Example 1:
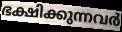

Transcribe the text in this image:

ഭക്ഷിക്കുന്നവർ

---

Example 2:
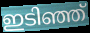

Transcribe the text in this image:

ഇടിഞ്ഞ്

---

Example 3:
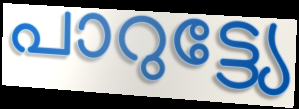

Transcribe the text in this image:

പാറുട്ട്യേ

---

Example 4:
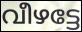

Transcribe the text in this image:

വീഴട്ടേ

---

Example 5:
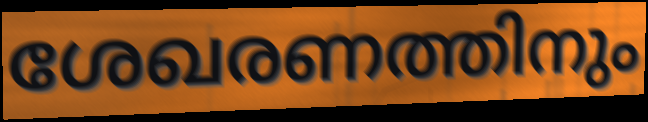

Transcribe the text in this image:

ശേഖരണത്തിനും